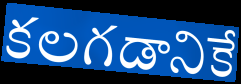
కలగడానికే